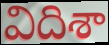
విదిశా